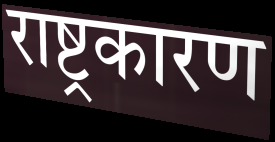
राष्ट्रकारण